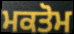
ਮਕਤੋਮ